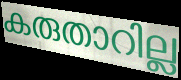
കരുതാറില്ല